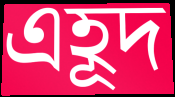
এহূদ